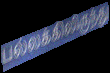
பல்லக்கிலிருந்து